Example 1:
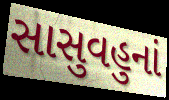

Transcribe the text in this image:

સાસુવહુનાં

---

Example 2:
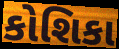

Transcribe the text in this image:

કોશિકા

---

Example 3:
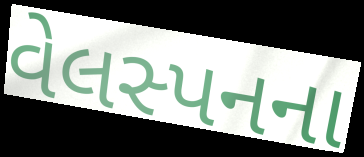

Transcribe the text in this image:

વેલસ્પનના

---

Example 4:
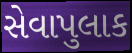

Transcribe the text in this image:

સેવાપુલાક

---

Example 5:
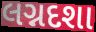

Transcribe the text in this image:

લગ્નદશા